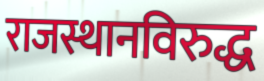
राजस्थानविरुद्ध